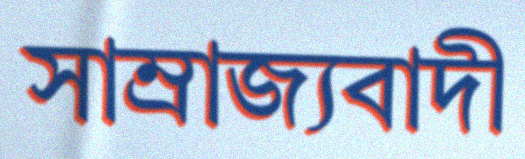
সাম্ৰাজ্যবাদী